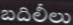
బదిలీలు